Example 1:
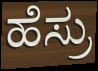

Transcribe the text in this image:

ಹೆಸ್ರು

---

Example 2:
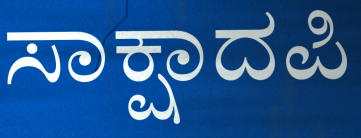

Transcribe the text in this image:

ಸಾಕ್ಷಾದಪಿ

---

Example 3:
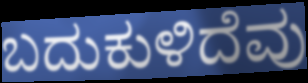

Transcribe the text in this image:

ಬದುಕುಳಿದೆವು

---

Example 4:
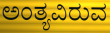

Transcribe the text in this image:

ಅಂತ್ಯವಿರುವ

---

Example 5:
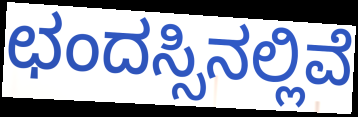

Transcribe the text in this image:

ಛಂದಸ್ಸಿನಲ್ಲಿವೆ